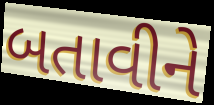
બતાવીને